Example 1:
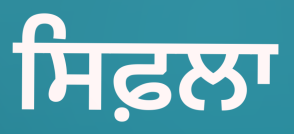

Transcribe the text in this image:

ਸਿਫ਼ਲਾ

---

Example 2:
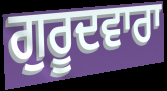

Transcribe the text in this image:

ਗੁਰੂਦਵਾਰਾ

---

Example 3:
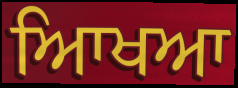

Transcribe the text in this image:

ਆਿਖਆ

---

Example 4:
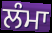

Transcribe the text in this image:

ਲੰਮਾ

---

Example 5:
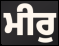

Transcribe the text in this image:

ਮੀਰੁ